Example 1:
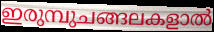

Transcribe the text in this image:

ഇരുമ്പുചങ്ങലകളാൽ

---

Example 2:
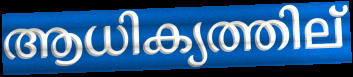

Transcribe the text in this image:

ആധിക്യത്തില്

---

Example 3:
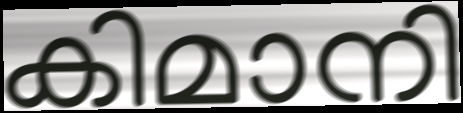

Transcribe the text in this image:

കിമാനി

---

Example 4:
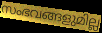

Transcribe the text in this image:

സംഭവങ്ങളുമില്ല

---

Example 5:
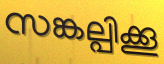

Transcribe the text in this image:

സങ്കല്പിക്കൂ